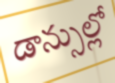
డాన్సుల్లో